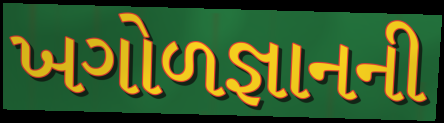
ખગોળજ્ઞાનની